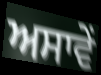
ਅਸਾਵੇਂ